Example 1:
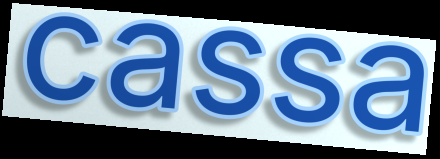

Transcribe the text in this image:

cassa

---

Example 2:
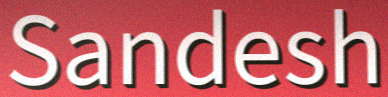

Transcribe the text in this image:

Sandesh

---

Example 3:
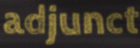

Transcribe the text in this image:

adjunct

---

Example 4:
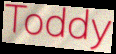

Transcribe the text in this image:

Toddy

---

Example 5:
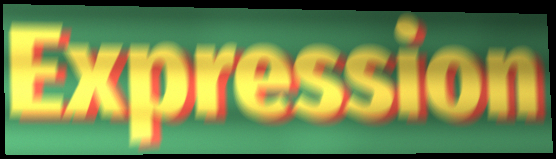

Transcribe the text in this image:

Expression